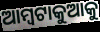
ଆମ୍ବଟାକୁଆକୁ